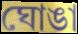
ঘোঙা